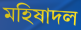
মহিষাদল